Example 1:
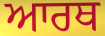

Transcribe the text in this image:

ਆਰਥ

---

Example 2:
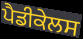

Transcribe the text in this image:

ਪੈਡੀਕੇਲਸ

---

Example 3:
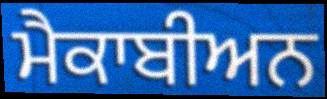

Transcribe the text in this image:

ਮੈਕਾਬੀਅਨ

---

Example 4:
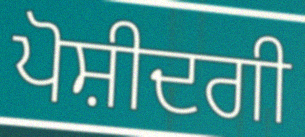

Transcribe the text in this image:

ਪੋਸ਼ੀਦਗੀ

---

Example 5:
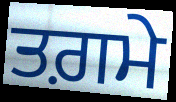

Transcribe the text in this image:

ਤਗ਼ਮੇ